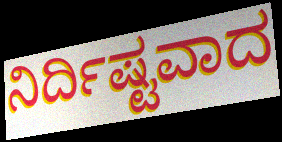
ನಿರ್ದಿಷ್ಟವಾದ